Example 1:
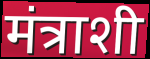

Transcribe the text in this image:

मंत्राशी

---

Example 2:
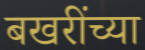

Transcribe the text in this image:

बखरींच्या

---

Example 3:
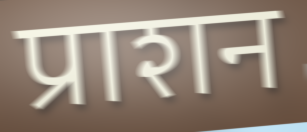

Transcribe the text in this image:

प्राशन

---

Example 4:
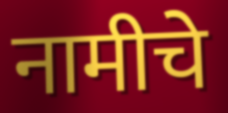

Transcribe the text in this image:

नामीचे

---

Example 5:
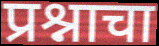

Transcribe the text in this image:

प्रश्नाचा